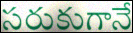
సరుకుగానే